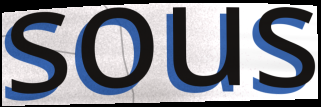
sous